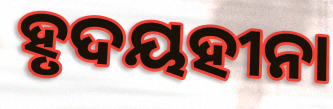
ହୃଦୟହୀନା